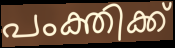
പംക്തിക്ക്